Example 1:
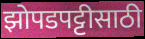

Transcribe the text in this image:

झोपडपट्टीसाठी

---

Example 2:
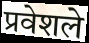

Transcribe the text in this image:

प्रवेशले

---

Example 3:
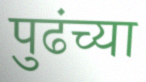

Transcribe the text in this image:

पुढंच्या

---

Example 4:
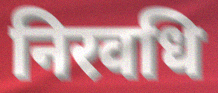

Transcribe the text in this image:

निरवधि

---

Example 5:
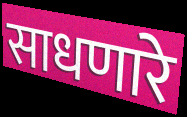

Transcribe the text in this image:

साधणारे